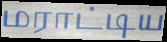
மராட்டிய